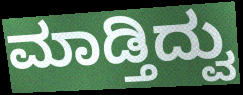
ಮಾಡ್ತಿದ್ವು